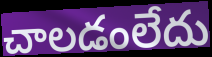
చాలడంలేదు